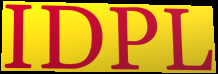
IDPL